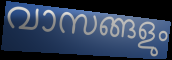
വാസങ്ങളും